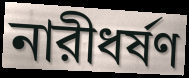
নারীধর্ষণ